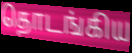
தொடங்கிய